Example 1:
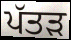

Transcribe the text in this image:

ਪੱਤਡ਼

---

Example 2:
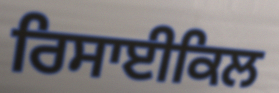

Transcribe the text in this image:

ਰਿਸਾਈਕਿਲ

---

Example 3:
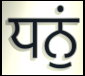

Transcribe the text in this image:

ਧਨੁਂ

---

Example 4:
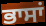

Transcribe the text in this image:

ਭਾਸਾਂ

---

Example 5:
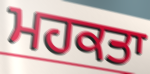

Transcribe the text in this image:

ਮਹਕਤਾ